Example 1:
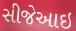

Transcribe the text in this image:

સીજેઆઇ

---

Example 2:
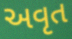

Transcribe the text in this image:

અવૃત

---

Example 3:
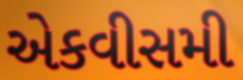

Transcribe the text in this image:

એકવીસમી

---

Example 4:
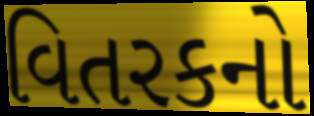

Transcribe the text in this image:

વિતરકનો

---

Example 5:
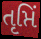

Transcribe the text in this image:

તૃપ્તિં